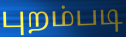
புறம்படி